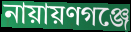
নায়ায়ণগঞ্জে